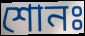
শোনঃ